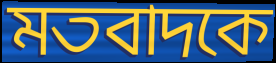
মতবাদকে